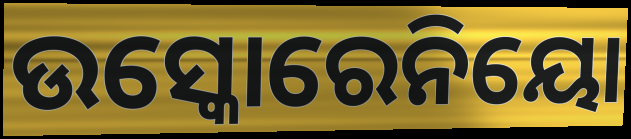
ଉସ୍କୋରେନିୟୋ